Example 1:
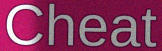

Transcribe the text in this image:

Cheat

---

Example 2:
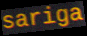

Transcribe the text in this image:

sariga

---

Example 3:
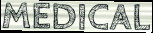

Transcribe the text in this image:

MEDICAL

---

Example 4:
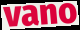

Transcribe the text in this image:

vano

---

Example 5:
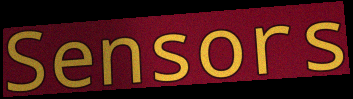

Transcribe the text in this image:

Sensors